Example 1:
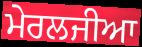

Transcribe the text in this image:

ਮੇਰਲਜੀਆ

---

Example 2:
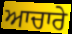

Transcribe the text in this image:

ਆਚਾਰੇ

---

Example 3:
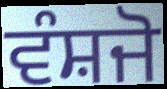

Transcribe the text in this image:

ਵੰਸ਼ਜੋ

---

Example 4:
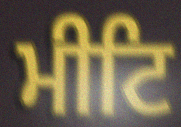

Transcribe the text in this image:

ਮੀਟਿ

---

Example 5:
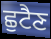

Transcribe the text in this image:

ਛੁਟੈਣ